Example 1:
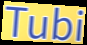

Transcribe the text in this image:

Tubi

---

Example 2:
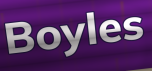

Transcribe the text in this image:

Boyles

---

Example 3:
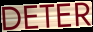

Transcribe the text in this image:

DETER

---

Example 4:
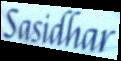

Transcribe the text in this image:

Sasidhar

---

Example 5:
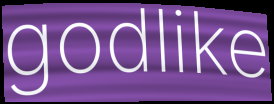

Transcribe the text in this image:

godlike